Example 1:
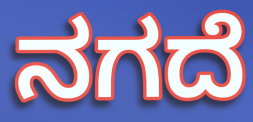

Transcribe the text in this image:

ನಗದೆ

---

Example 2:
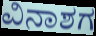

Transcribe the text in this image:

ವಿನಾಶಗ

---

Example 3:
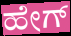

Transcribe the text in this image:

ಹೇಗ್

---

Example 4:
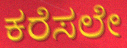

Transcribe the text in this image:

ಕರೆಸಲೇ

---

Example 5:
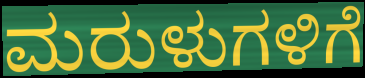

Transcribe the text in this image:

ಮರುಳುಗಳಿಗೆ